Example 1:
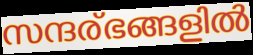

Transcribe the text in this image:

സന്ദര്ഭങ്ങളിൽ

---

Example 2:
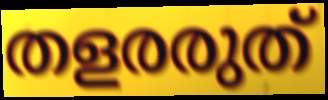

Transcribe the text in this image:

തളരരുത്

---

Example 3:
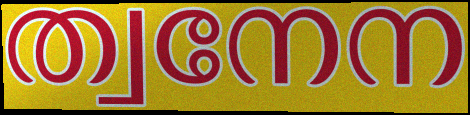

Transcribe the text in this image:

ത്വനേന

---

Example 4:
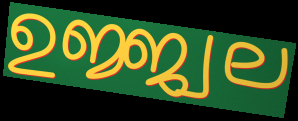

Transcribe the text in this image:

ഉജ്ജ്വല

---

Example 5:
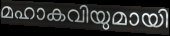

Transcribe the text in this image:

മഹാകവിയുമായി